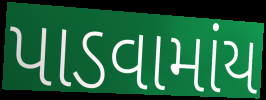
પાડવામાંય